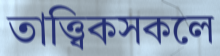
তাত্ত্বিকসকলে